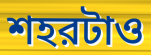
শহরটাও